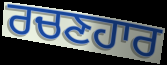
ਰਚਣਹਾਰ